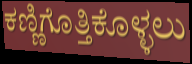
ಕಣ್ಣಿಗೊತ್ತಿಕೊಳ್ಳಲು